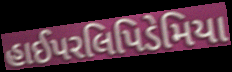
હાઈપરલિપિડેમિયા